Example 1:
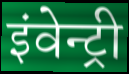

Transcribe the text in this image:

इंवेन्ट्री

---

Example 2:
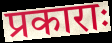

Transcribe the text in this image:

प्रकाराः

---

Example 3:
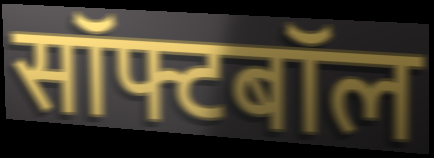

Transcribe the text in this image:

सॉफ्टबॉल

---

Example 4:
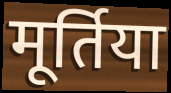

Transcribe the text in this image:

मूर्तिया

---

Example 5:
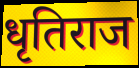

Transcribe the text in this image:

धृतिराज